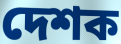
দেশক